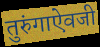
तुरुंगाऐवजी